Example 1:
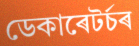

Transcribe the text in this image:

ডেকাৰেটৰ্চৰ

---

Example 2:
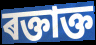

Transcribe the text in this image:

ৰক্তাক্ত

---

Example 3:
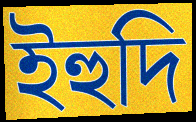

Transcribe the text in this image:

ইহুদি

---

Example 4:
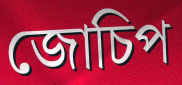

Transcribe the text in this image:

জোচিপ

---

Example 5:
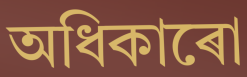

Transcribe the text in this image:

অধিকাৰো